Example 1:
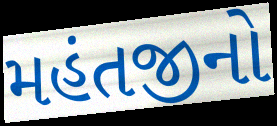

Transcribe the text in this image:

મહંતજીનો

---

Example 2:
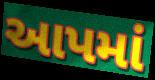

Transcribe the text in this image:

આપમાં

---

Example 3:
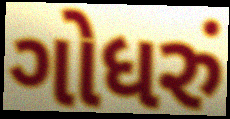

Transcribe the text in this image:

ગોધરું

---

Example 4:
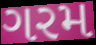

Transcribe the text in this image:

ગરમ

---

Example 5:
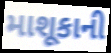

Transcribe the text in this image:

માશૂકાની